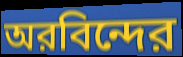
অরবিন্দের